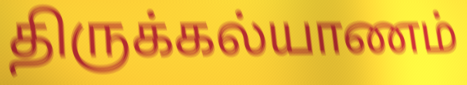
திருக்கல்யாணம்